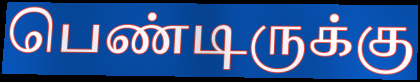
பெண்டிருக்கு